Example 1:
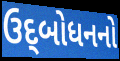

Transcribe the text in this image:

ઉદ્‌બોધનનો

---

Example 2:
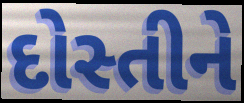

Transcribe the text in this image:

દોસ્તીને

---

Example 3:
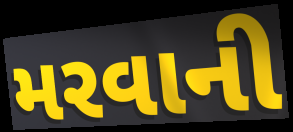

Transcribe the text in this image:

મરવાની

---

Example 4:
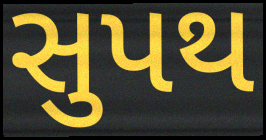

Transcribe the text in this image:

સુપથ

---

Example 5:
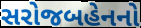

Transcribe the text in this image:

સરોજબહેનનો